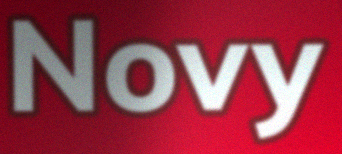
Novy